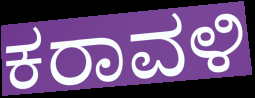
ಕರಾವಳಿ